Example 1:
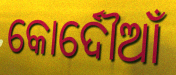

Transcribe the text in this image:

କୋର୍ଦୌଆଁ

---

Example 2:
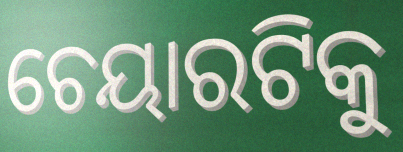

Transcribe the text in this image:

ଚେୟାରଟିକୁ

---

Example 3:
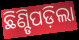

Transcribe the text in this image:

ଛିଣ୍ଡିପଡ଼ିଲା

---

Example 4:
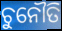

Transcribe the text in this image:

ଚୁନୌତି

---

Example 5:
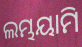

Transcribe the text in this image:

ଲମ୍ଭୟାମି